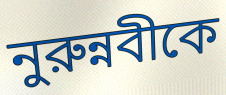
নুরুন্নবীকে